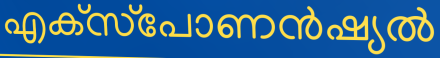
എക്‌സ്‌പോണൻഷ്യൽ